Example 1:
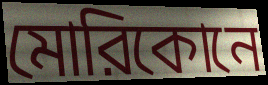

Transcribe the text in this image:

মোরিকোনে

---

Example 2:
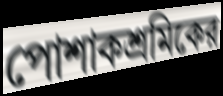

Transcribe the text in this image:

পোশাকশ্রমিকের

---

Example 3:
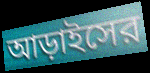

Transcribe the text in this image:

আড়াইসের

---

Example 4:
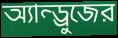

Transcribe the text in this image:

অ্যান্ড্রুজের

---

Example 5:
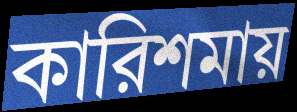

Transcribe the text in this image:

কারিশমায়